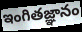
ఇంగితజ్ఞానం